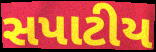
સપાટીય